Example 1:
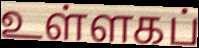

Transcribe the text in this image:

உள்ளகப்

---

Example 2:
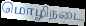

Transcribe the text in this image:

மொழிநடை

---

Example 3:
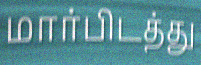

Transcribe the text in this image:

மார்பிடத்து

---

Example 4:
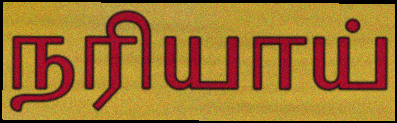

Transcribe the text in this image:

நரியாய்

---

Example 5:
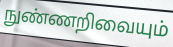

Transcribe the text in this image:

நுண்ணறிவையும்